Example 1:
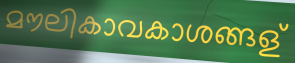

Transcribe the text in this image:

മൗലികാവകാശങ്ങള്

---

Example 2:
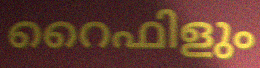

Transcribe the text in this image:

റൈഫിളും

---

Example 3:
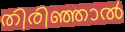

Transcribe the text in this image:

തിരിഞ്ഞാൽ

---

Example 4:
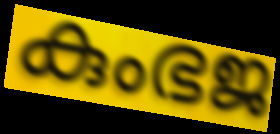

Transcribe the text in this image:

കുംഭജ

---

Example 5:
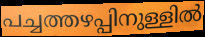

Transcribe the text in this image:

പച്ചത്തഴപ്പിനുള്ളിൽ